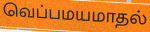
வெப்பமயமாதல்